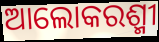
ଆଲୋକରଶ୍ମୀ